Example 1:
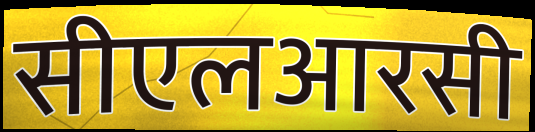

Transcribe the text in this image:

सीएलआरसी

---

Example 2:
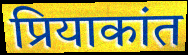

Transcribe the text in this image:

प्रियाकांत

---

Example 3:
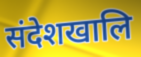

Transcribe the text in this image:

संदेशखालि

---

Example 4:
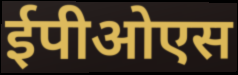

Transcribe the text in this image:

ईपीओएस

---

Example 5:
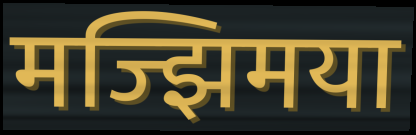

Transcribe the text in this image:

मज्झिमया